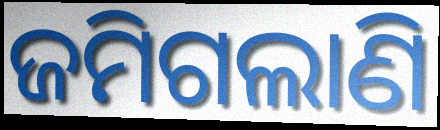
ଜମିଗଲାଣି